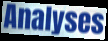
Analyses